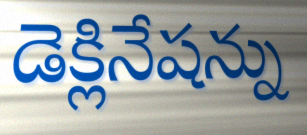
డెక్లినేషన్ను